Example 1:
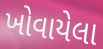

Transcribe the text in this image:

ખોવાયેલા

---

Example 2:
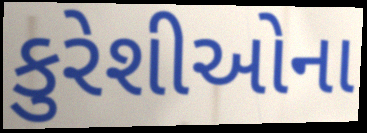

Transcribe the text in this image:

કુરેશીઓના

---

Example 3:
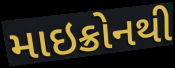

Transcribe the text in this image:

માઇક્રોનથી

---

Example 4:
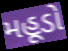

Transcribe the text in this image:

મહૂડો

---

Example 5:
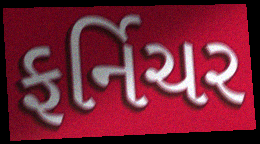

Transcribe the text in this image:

ફર્નિચર